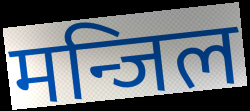
मन्जिल